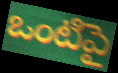
ఒంటిపై